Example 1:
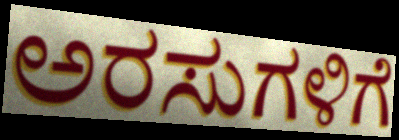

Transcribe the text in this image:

ಅರಸುಗಳಿಗೆ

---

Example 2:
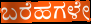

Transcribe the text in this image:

ಬರೆಹಗಳೇ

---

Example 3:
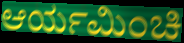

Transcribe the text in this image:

ಆರ್ಯಮಿಂಚಿ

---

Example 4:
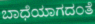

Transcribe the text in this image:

ಬಾಧೆಯಾಗದಂತೆ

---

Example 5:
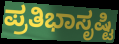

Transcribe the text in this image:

ಪ್ರತಿಭಾಸೃಷ್ಟಿ